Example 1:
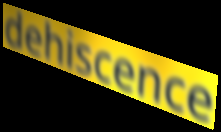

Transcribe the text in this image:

dehiscence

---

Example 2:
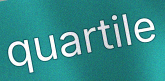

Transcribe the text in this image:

quartile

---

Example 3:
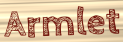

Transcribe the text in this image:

Armlet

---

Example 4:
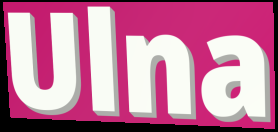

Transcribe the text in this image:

Ulna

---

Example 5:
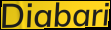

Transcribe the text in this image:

Diabari